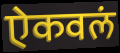
ऐकवलं